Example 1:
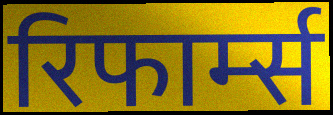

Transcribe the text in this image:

रिफार्म्स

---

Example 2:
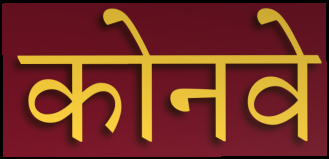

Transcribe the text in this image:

कोनवे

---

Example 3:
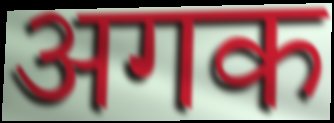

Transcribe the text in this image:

अगक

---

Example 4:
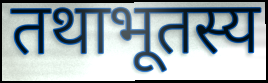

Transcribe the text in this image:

तथाभूतस्य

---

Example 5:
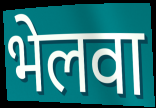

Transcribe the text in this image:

भेलवा